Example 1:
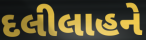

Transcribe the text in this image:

દલીલાહને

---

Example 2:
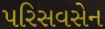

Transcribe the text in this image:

પરિસવસેન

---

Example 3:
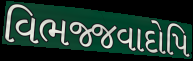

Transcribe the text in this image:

વિભજ્જવાદોપિ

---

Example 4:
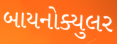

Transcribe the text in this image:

બાયનોક્યુલર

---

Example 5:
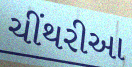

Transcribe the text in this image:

ચીંથરીઆ